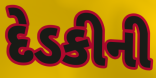
દેડકીની